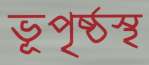
ভূপৃষ্ঠস্থ